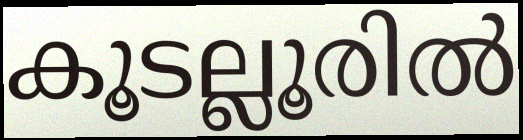
കൂടല്ലൂരിൽ